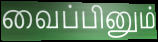
வைப்பினும்